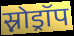
स्नोड्रॉप